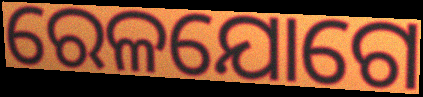
ରେଳଯୋଗେ